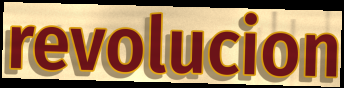
revolucion